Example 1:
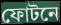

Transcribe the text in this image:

ফোটনে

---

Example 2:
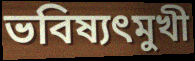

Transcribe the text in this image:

ভবিষ্যৎমুখী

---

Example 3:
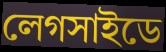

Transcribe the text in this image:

লেগসাইডে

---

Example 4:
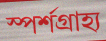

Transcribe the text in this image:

স্পর্শগ্রাহ্য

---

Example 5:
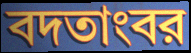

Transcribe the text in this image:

বদতাংবর